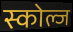
स्कोल्ज